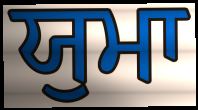
ਯੁਮਾ